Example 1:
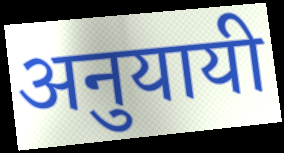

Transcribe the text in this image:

अनुयायी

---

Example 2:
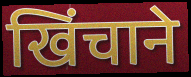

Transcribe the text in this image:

खिंचाने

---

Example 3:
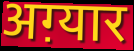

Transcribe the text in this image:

अग़्यार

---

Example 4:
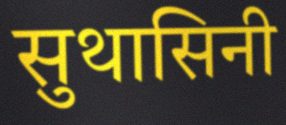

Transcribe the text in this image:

सुथासिनी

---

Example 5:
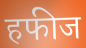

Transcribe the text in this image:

हफीज